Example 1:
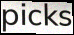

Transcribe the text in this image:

picks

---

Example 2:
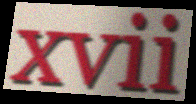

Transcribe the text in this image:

xvii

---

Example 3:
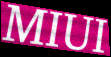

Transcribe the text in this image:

MIUI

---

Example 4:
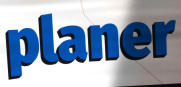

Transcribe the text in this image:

planer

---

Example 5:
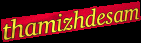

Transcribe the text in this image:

thamizhdesam